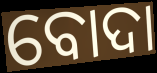
ବୋଦା